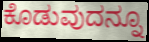
ಕೊಡುವುದನ್ನೂ